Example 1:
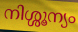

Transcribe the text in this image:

നിശ്ശൂന്യം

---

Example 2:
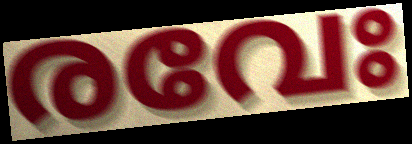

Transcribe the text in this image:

രവേഃ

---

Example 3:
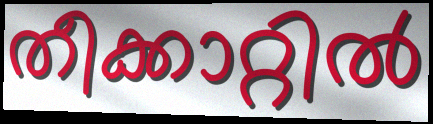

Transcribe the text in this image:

തീക്കാറ്റിൽ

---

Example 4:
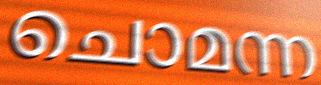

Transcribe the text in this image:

ചൊമന്ന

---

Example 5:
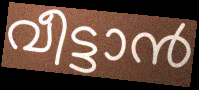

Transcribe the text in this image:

വീട്ടാൻ